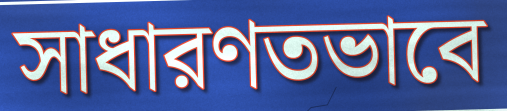
সাধারণতভাবে